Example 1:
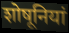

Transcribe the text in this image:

शोषूनियां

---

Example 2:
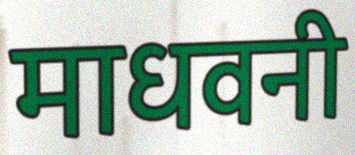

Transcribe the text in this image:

माधवनी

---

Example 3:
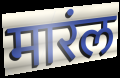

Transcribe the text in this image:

मारंल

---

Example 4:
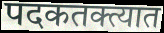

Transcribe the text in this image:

पदकतक्त्यात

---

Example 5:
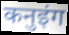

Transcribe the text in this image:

कनुइंग